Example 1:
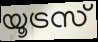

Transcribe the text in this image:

യൂട്രസ്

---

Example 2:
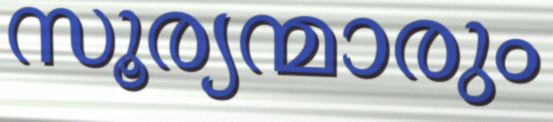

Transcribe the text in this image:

സൂര്യന്മാരും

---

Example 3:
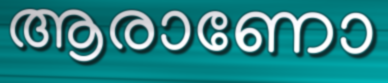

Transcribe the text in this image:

ആരാണോ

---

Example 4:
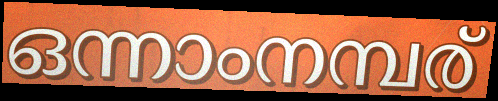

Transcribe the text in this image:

ഒന്നാംനമ്പര്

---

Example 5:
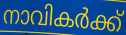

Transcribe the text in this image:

നാവികർക്ക്